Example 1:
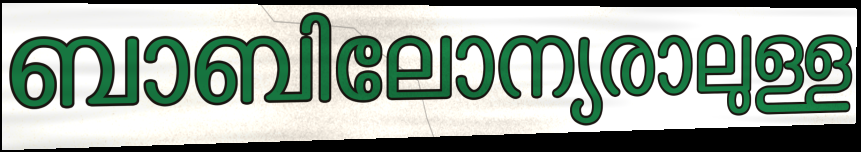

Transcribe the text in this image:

ബാബിലോന്യരാലുള്ള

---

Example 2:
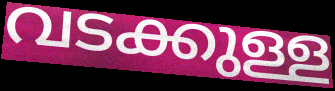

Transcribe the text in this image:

വടക്കുള്ള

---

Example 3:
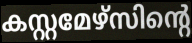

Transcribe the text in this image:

കസ്റ്റമേഴ്സിന്റെ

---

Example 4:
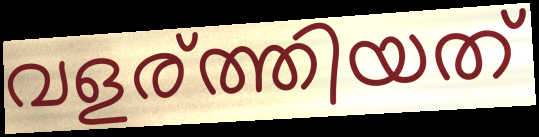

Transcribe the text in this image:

വളര്ത്തിയത്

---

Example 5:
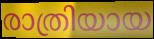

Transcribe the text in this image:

രാത്രിയായ